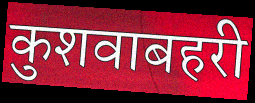
कुशवाबहरी